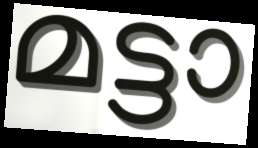
മട്ടാ